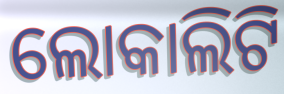
ଲୋକାଲିଟି